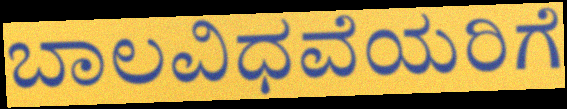
ಬಾಲವಿಧವೆಯರಿಗೆ